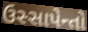
ઉસ્સાપેન્તો